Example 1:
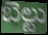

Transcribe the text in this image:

బెల్టు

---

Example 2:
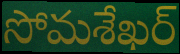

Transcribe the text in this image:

సోమశేఖర్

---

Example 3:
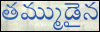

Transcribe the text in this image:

తమ్ముడైన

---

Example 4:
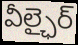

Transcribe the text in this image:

వీల్ఛైర్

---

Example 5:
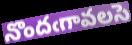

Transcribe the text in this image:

నొందఁగావలసె